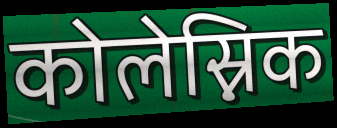
कोलेस्निक